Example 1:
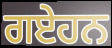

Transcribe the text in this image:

ਗਏਹਨ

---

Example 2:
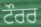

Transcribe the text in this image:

ਟੌਰਰ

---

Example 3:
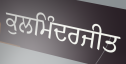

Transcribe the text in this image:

ਕੁਲਮਿੰਦਰਜੀਤ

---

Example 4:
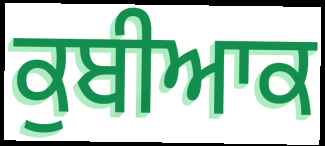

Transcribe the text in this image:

ਕੁਬੀਆਕ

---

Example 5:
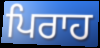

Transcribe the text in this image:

ਪਿਰਾਹ